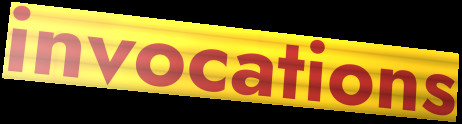
invocations